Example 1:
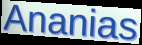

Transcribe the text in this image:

Ananias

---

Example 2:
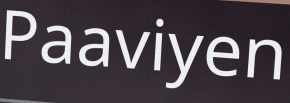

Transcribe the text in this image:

Paaviyen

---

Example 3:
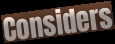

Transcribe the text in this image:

Considers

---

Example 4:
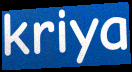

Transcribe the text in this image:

kriya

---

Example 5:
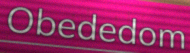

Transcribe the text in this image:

Obededom